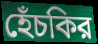
হেঁচকির